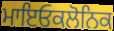
ਮਾਇਓਕਲੋਨਿਕ